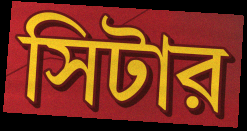
সিটার